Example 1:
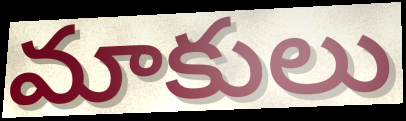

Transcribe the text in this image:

మాకులు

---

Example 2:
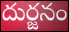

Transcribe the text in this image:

దుర్జనం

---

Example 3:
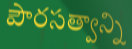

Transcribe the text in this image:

పౌరసత్వాన్ని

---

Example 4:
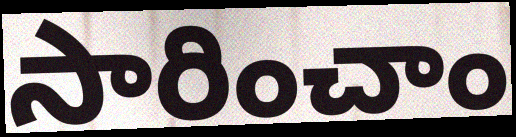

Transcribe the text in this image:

సారించాం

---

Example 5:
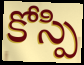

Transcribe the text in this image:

కోస్పి